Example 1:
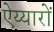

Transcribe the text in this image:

ऐय्यारों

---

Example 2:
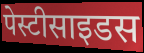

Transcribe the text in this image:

पेस्टीसाइडस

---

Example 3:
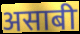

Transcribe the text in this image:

असाबी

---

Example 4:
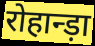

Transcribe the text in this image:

रोहान्ड़ा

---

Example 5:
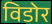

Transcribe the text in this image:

विडोर